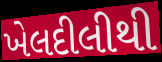
ખેલદીલીથી